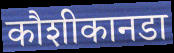
कौशीकानडा